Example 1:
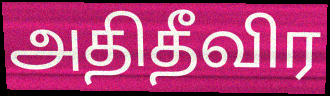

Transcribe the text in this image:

அதிதீவிர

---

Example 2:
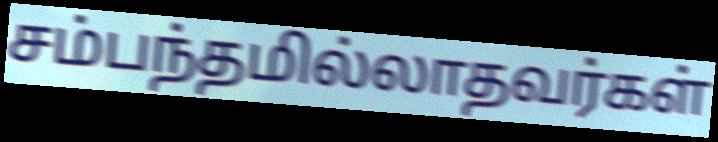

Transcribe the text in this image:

சம்பந்தமில்லாதவர்கள்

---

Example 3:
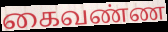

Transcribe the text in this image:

கைவண்ண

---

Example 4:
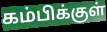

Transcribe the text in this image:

கம்பிக்குள்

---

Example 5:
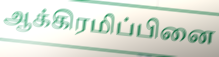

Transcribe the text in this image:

ஆக்கிரமிப்பினை